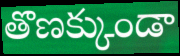
తొణక్కుండా